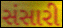
સંસારી